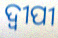
ଦ୍ଵୀପୀ